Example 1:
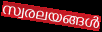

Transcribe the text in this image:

സ്വരലയങ്ങൾ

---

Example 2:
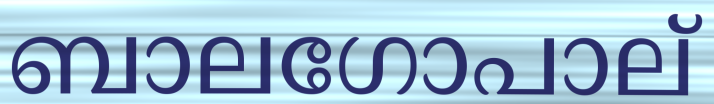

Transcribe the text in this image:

ബാലഗോപാല്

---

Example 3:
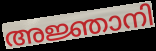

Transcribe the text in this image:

അജ്ഞാനി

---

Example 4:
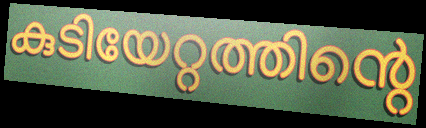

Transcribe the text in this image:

കുടിയേറ്റത്തിന്റെ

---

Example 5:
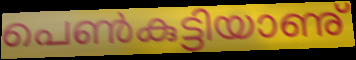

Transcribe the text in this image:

പെൺകുട്ടിയാണു്